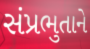
સંપ્રભુતાને